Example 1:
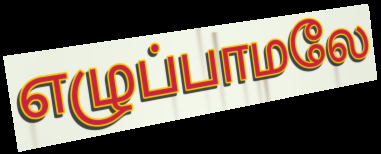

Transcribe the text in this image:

எழுப்பாமலே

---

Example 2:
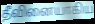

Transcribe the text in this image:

தீவினையாகிய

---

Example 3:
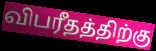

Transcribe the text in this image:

விபரீதத்திற்கு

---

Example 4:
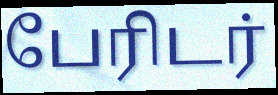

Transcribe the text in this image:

பேரிடர்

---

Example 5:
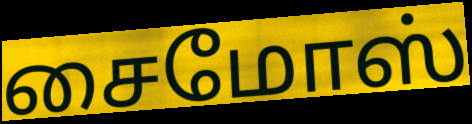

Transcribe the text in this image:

சைமோஸ்